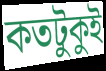
কতটুকুই